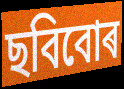
ছবিবোৰ